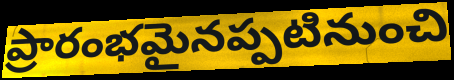
ప్రారంభమైనప్పటినుంచి